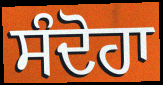
ਸੰਦੋਹਾ